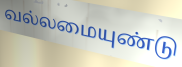
வல்லமையுண்டு